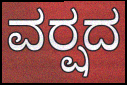
ವರ್‍ಷದ